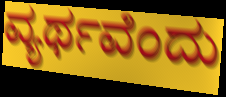
ವ್ಯರ್ಥವೆಂದು